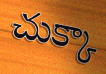
చుక్కా